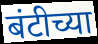
बंटीच्या